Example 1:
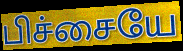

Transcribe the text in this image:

பிச்சையே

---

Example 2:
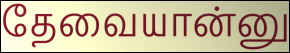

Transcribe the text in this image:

தேவையான்னு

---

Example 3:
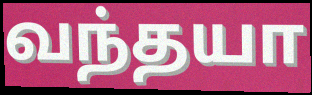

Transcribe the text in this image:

வந்தயா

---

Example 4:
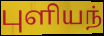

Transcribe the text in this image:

புளியந்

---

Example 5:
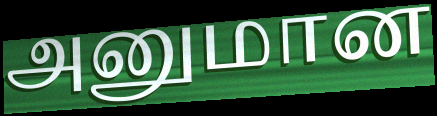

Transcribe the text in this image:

அனுமான